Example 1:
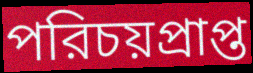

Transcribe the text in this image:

পরিচয়প্রাপ্ত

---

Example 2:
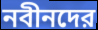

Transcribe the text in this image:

নবীনদের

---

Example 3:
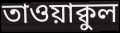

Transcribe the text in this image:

তাওয়াক্বুল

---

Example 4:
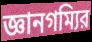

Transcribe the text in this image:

জ্ঞানগম্যির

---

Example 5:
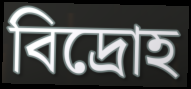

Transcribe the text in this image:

বিদ্রোহ